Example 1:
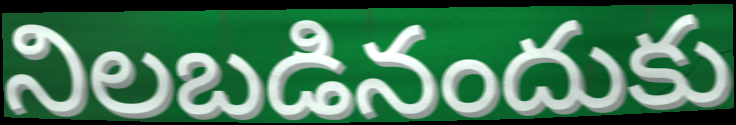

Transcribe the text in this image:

నిలబడినందుకు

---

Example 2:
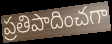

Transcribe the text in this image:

ప్రతిపాదించగా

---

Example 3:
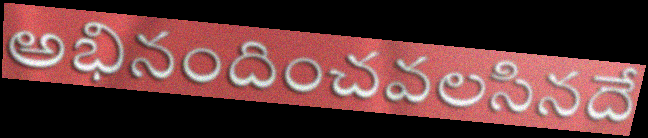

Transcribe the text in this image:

అభినందించవలసినదే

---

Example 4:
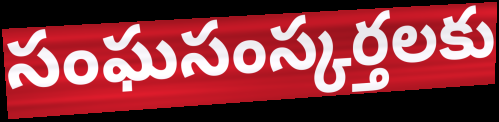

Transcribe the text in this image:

సంఘసంస్కర్తలకు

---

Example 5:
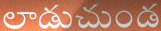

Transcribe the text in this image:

లాడుచుండ